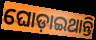
ଘୋଡ଼ାଇଥାନ୍ତି